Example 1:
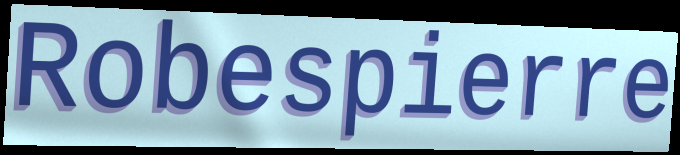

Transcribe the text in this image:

Robespierre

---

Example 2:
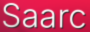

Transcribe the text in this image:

Saarc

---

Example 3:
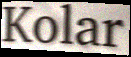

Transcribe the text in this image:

Kolar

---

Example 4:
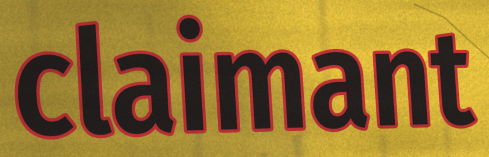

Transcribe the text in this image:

claimant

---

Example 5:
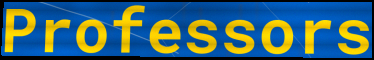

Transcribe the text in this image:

Professors